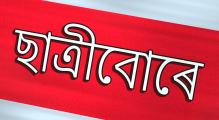
ছাত্ৰীবোৰে